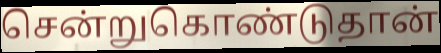
சென்றுகொண்டுதான்